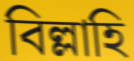
বিল্লাহি